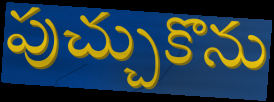
పుచ్చుకొను